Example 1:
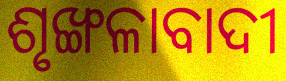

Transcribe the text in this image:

ଶୃଙ୍ଖଳାବାଦୀ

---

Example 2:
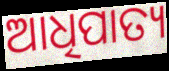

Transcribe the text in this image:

ଆଧିପାତ୍ୟ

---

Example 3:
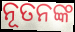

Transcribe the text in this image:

ନୂତନଙ୍କ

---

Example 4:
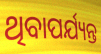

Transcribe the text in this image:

ଥିବାପର୍ଯ୍ୟନ୍ତ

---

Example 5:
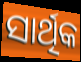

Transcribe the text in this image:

ସାର୍ଥିକ